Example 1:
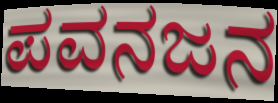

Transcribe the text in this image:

ಪವನಜನ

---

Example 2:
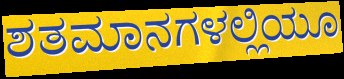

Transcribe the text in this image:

ಶತಮಾನಗಳಲ್ಲಿಯೂ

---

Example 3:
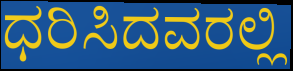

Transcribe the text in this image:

ಧರಿಸಿದವರಲ್ಲಿ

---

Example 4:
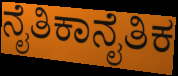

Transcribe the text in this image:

ನೈತಿಕಾನೈತಿಕ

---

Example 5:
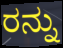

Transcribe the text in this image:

ರನ್ನು